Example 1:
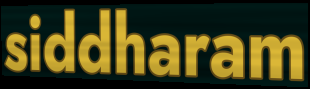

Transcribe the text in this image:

siddharam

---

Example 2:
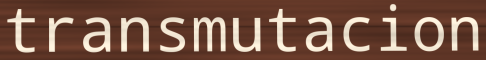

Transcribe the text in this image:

transmutacion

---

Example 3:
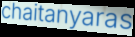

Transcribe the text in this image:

chaitanyaras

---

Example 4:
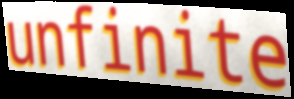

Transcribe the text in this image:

unfinite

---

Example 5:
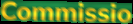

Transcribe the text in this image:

Commissio